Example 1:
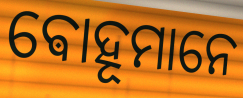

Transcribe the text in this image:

ଵୋହୂମାନେ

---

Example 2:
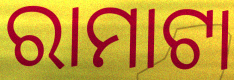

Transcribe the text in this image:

ରାମାଟା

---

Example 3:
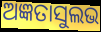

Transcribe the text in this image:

ଅଜ୍ଞତାସୁଲଭ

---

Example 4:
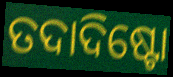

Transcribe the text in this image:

ତଦାଦିଷ୍ଟୋ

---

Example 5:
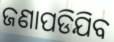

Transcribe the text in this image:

ଜଣାପଡିଯିବ